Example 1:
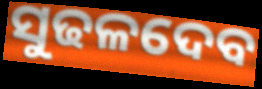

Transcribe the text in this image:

ସୁଢଳଦେବ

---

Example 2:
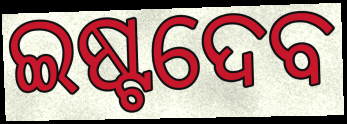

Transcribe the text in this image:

ଇଷ୍ଟଦେବ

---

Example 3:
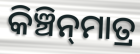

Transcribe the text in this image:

କିଞ୍ଚିନ୍‍ମାତ୍ର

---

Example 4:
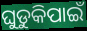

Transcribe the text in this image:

ଘୁଡୁକିପାଇଁ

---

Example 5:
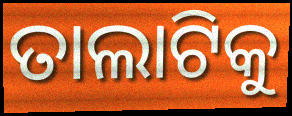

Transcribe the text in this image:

ତାଲାଟିକୁ